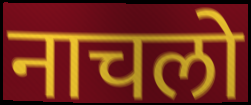
नाचलो